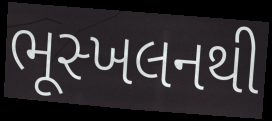
ભૂસ્ખલનથી